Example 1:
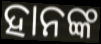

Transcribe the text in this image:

ହାନଙ୍କ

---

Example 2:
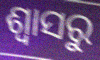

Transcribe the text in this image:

ଶ୍ୱାସରୁ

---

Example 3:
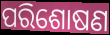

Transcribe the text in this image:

ପରିଶୋଷଣ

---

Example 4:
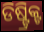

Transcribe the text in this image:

ଡିଷ୍ଟ୍ରିକ୍ଟ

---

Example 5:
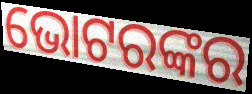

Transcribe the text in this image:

ଭୋଟରଙ୍କର